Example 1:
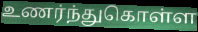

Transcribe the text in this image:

உணர்ந்துகொள்ள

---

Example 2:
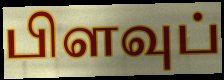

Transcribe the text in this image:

பிளவுப்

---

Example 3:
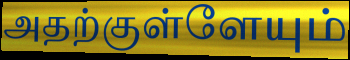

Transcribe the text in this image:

அதற்குள்ளேயும்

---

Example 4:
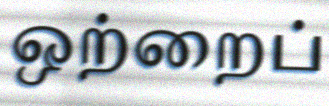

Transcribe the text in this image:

ஒற்றைப்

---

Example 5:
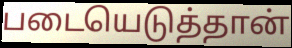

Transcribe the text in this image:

படையெடுத்தான்